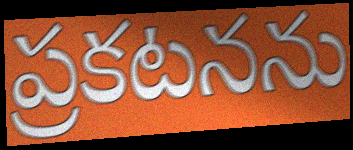
ప్రకటనను